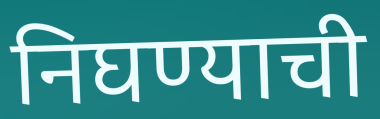
निघण्याची